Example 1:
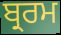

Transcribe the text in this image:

ਬ੍ਰਰਮ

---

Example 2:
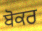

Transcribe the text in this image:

ਬੋਕਰ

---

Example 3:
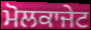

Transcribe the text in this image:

ਮੋਲਕਾਜੇਟ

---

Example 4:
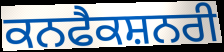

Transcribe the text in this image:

ਕਨਫੈਕਸ਼ਨਰੀ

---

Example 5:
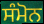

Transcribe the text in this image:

ਸੰਮੋਨ